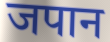
जपान